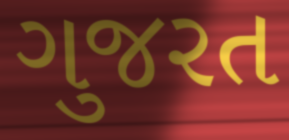
ગુજરત